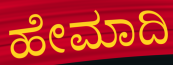
ಹೇಮಾದಿ